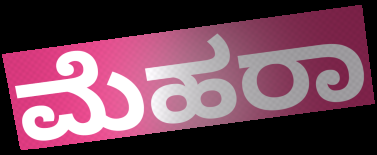
ಮೆಹರಾ